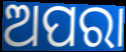
ଅପରା